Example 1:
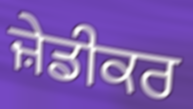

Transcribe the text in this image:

ਜ਼ੇਡੀਕਰ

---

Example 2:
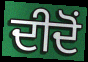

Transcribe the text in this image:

ਦੀਦੋਂ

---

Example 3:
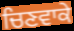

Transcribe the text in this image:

ਚਿਣਵਾਕੇ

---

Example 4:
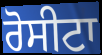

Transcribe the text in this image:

ਰੋਸੀਟਾ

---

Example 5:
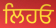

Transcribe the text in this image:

ਲਿਹਓ